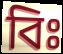
বিঃ